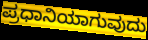
ಪ್ರಧಾನಿಯಾಗುವುದು